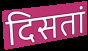
दिसतां